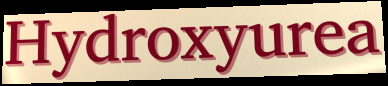
Hydroxyurea